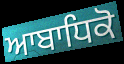
ਆਬਾਧਿਕੋ